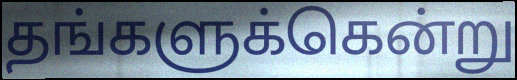
தங்களுக்கென்று